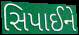
સિપાઈને